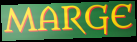
MARGE